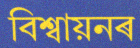
বিশ্বায়নৰ